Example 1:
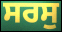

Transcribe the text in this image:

ਸਰਸੁ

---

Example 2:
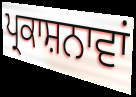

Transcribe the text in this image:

ਪ੍ਰਕਾਸ਼ਨਾਵਾਂ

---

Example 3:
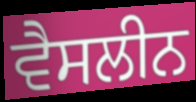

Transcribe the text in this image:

ਵੈਸਲੀਨ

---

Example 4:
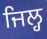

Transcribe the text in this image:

ਜਿਲ੍ਹ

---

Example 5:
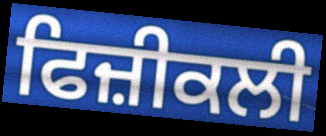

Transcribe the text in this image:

ਫਿਜ਼ੀਕਲੀ